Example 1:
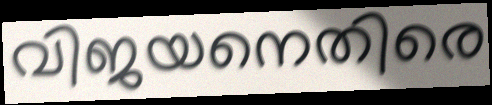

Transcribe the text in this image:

വിജയനെതിരെ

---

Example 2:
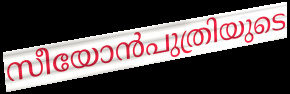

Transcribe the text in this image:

സീയോൻപുത്രിയുടെ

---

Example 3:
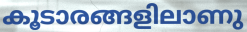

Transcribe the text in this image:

കൂടാരങ്ങളിലാണു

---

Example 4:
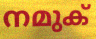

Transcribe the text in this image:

നമുക്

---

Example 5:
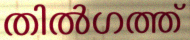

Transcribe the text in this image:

തിൽഗത്ത്